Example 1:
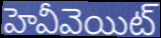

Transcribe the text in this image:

హెవీవెయిట్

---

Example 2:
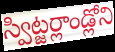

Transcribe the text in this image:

స్విట్జర్లాండ్లోని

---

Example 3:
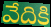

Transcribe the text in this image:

వేదికి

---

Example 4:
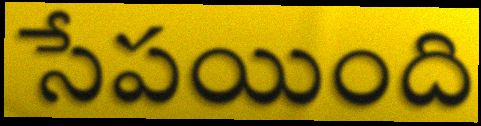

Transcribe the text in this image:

సేపయింది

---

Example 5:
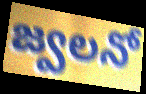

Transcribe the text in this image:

జ్వలనో